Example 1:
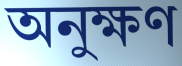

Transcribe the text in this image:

অনুক্ষণ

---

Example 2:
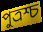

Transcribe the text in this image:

পুত্রশ্চ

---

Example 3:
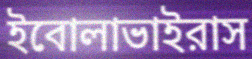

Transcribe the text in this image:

ইবোলাভাইরাস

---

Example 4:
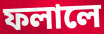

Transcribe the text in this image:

ফলালে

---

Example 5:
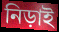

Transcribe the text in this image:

নিড়াই